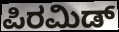
ಪಿರಮಿಡ್